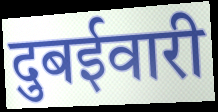
दुबईवारी